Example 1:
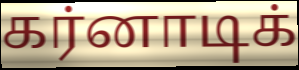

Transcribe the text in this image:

கர்னாடிக்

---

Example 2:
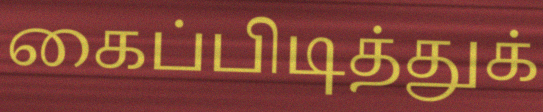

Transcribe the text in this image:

கைப்பிடித்துக்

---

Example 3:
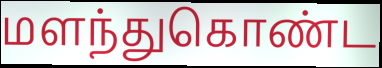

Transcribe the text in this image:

மளந்துகொண்ட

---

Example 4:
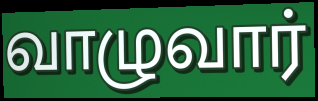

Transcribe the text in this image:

வாழுவார்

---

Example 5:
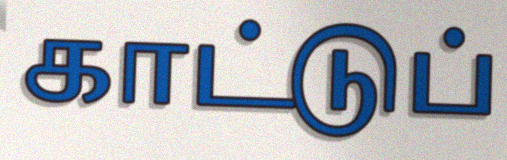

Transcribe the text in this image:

காட்டுப்